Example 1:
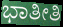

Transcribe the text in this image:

ಭಾತೀತಿ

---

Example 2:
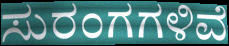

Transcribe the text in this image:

ಸುರಂಗಗಳಿವೆ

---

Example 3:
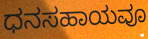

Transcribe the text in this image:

ಧನಸಹಾಯವೂ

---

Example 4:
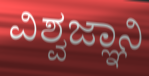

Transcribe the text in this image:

ವಿಶ್ವಜ್ಞಾನಿ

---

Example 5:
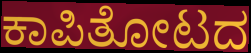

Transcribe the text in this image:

ಕಾಪಿತೋಟದ